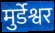
मुर्डेश्वर